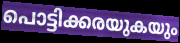
പൊട്ടിക്കരയുകയും